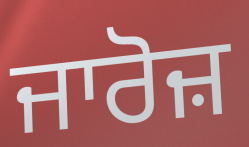
ਜਾਰੋਜ਼